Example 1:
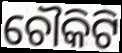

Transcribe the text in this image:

ଚୌକିଟି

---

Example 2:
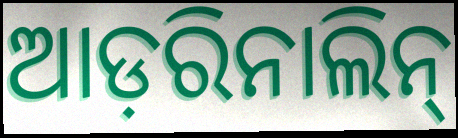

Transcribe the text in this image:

ଆଡ଼ରିନାଲିନ୍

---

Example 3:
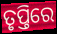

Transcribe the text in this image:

ତୃପ୍ତିରେ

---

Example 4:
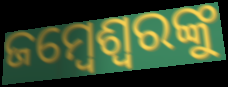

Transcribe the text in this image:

ଜମ୍ବେଶ୍ୱରଙ୍କୁ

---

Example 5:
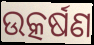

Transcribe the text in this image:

ଉତ୍କର୍ଷଣ